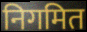
निगमित